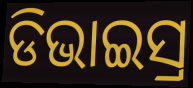
ଡିଭାଇସ୍ର